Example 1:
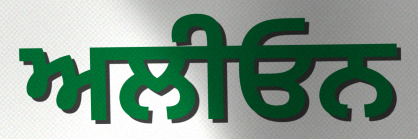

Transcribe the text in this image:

ਅਲੀਓਨ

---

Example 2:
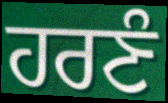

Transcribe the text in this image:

ਹਰਣੰ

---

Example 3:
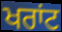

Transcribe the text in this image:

ਖਰਾਂਟ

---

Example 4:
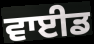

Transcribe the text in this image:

ਵਾਈਡ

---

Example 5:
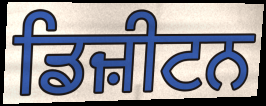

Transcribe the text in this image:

ਡਿਜ਼ੀਟਨ